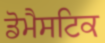
ਡੋਮੈਸਟਿਕ